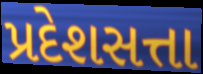
પ્રદેશસત્તા